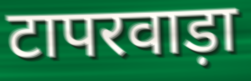
टापरवाड़ा